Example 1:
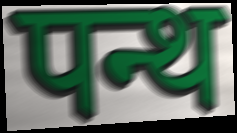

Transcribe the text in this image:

पन्थ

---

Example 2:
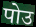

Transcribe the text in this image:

पोउ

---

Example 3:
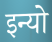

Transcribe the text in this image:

इन्यो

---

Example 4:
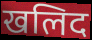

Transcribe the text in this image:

खलिद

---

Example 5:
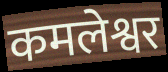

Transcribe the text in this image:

कमलेश्वर